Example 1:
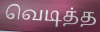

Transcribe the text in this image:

வெடித்த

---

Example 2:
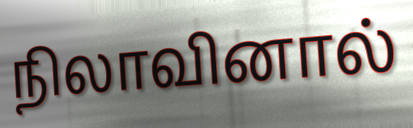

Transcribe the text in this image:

நிலாவினால்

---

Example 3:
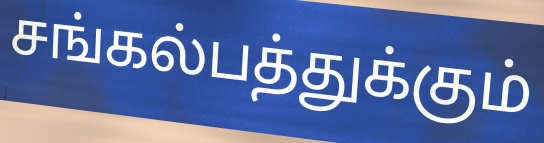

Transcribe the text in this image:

சங்கல்பத்துக்கும்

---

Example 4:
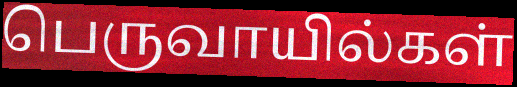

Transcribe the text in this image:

பெருவாயில்கள்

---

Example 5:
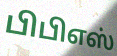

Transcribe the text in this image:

பிபிஎஸ்